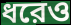
ধরেও